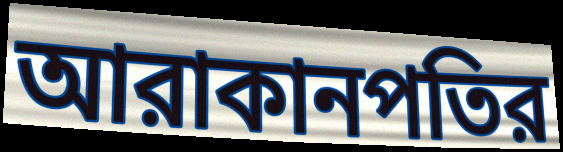
আরাকানপতির